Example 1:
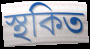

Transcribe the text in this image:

স্থকিত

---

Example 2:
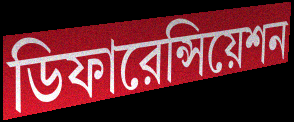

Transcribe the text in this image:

ডিফারেন্সিয়েশন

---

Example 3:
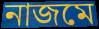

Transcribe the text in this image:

নাজমে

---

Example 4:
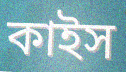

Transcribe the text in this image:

কাইস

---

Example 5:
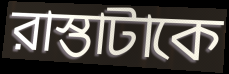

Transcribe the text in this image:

রাস্তাটাকে